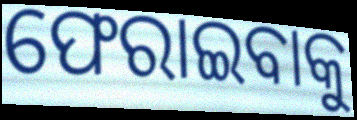
ଫେରାଇବାକୁ